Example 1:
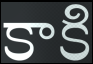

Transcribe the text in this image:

కాకి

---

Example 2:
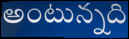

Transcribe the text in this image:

అంటున్నది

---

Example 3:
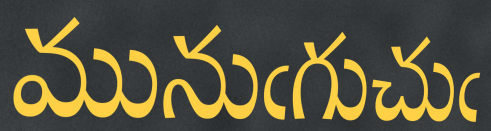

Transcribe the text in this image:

మునుఁగుచుఁ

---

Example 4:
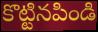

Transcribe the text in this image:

కొట్టినపిండి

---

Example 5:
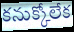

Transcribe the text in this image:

కనుక్కోలేక